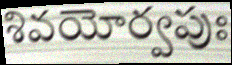
శివయోర్వపుః